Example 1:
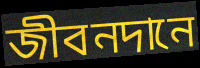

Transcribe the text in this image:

জীবনদানে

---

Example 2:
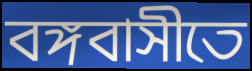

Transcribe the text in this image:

বঙ্গবাসীতে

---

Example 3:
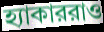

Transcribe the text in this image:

হ্যাকাররাও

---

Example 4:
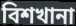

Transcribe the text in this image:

বিশখানা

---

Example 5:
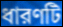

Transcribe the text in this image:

ধারণটি